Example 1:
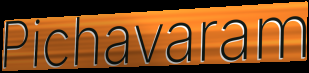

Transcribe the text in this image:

Pichavaram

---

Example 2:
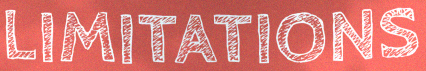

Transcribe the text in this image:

LIMITATIONS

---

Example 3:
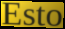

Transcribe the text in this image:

Esto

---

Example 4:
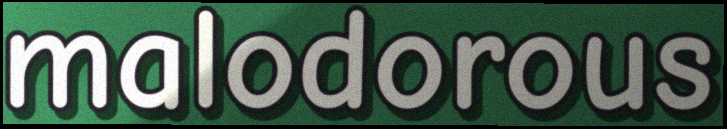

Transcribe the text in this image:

malodorous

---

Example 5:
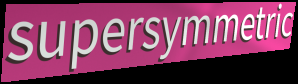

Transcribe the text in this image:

supersymmetric